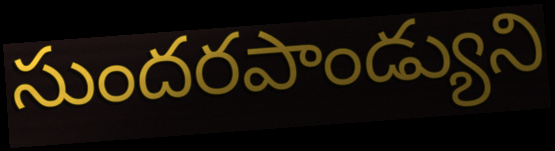
సుందరపాండ్యుని